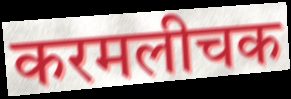
करमलीचक